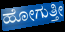
ಹೋಗುತ್ತೀ